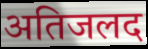
अतिजलद